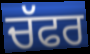
ਚੱਫਰ